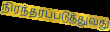
நிரந்தரப்படுத்துவது